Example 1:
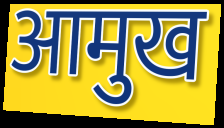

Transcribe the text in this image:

आमुख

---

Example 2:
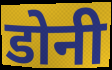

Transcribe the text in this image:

डोनी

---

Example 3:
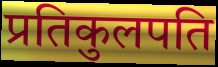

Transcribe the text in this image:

प्रतिकुलपति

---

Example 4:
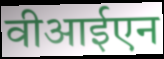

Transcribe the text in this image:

वीआईएन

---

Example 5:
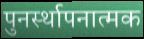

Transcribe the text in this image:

पुनर्स्थापनात्मक